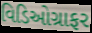
વિડિઓગ્રાફર